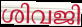
ശിവജി